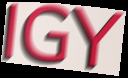
IGY